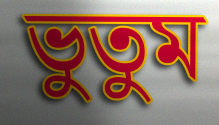
ভুতুম